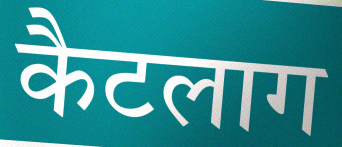
कैटलाग